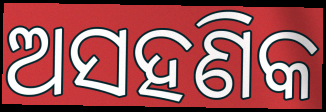
ଅସହଣିକ